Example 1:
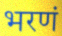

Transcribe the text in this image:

भरणं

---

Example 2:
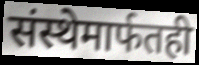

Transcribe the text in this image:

संस्थेमार्फतही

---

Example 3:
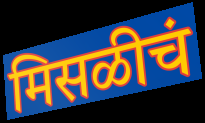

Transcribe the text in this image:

मिसळीचं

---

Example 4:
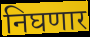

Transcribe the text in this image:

निघणार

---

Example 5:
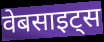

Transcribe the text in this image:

वेबसाइट्स